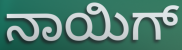
ನಾಯಿಗ್